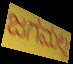
ಜಗಮಲ್ಲ